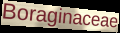
Boraginaceae